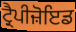
ਟ੍ਰੈਪੀਜ਼ੋਇਡ